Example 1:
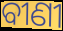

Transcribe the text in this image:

ବୀଣୀ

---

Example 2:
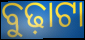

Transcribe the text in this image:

ବୁଢ଼ାଟା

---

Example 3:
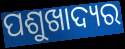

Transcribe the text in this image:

ପଶୁଖାଦ୍ୟର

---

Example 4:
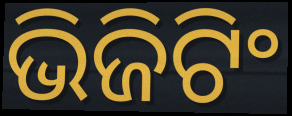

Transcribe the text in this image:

ଭିଜିଟିଂ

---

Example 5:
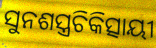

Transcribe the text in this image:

ସୁନଶସ୍ତ୍ରଚିକିତ୍ସାୟୀ